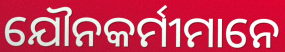
ଯୌନକର୍ମୀମାନେ